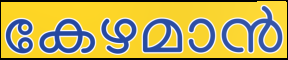
കേഴമാൻ